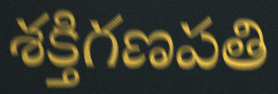
శక్తిగణపతి